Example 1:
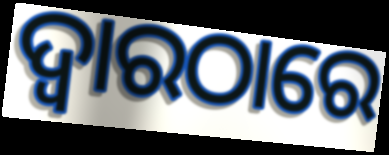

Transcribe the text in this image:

ଦ୍ୱାରଠାରେ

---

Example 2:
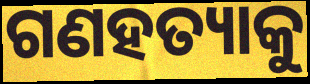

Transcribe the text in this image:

ଗଣହତ୍ୟାକୁ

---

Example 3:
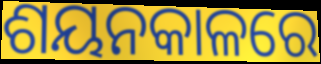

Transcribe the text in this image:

ଶୟନକାଳରେ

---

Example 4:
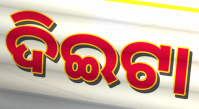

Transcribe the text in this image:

ଦିଇଟା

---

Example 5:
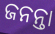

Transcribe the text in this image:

ଜନନ୍ତା